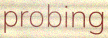
probing